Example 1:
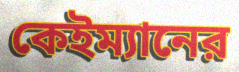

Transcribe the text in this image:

কেইম্যানের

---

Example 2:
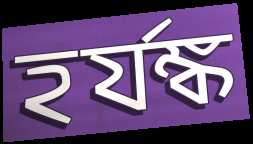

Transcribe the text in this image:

হর্যঙ্ক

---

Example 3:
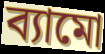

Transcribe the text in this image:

ব্যামো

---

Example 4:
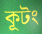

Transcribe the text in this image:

কূটং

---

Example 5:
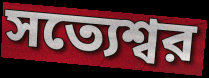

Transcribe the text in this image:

সত্যেশ্বর